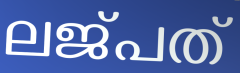
ലജ്പത്